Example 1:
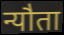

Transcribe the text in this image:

न्यौता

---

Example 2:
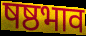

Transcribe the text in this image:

षष्ठभाव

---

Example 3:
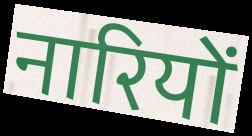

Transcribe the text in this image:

नारियों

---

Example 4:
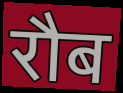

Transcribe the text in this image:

रौब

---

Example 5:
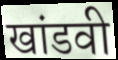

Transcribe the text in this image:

खांडवी